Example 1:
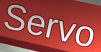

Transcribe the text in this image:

Servo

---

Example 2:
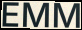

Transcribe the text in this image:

EMM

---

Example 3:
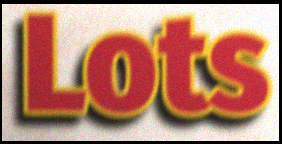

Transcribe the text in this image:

Lots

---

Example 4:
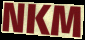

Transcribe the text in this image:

NKM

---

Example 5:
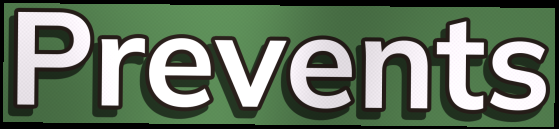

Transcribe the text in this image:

Prevents